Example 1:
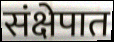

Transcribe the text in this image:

संक्षेपात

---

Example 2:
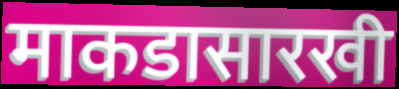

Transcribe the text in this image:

माकडासारखी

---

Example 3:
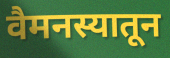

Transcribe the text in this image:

वैमनस्यातून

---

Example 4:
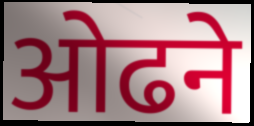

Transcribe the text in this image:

ओढने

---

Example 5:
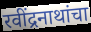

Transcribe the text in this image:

रवींद्रनाथांचा